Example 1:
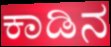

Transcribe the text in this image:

ಕಾಡಿನ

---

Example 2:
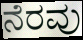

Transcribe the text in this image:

ನೆರವು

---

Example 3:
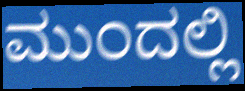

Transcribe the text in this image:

ಮುಂದಲ್ಲಿ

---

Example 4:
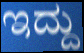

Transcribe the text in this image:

ಇದ್ದು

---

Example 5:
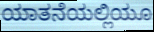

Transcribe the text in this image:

ಯಾತನೆಯಲ್ಲಿಯೂ